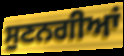
ਸੁਣਨਗੀਆਂ